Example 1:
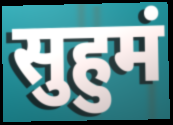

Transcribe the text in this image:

सुहुमं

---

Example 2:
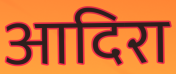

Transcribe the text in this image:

आदिरा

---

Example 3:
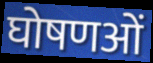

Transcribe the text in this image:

घोषणओं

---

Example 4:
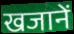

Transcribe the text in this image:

खजानें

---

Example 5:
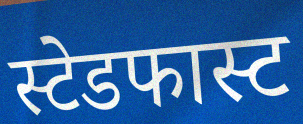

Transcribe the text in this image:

स्टेडफास्ट